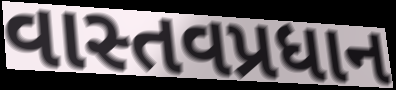
વાસ્તવપ્રધાન